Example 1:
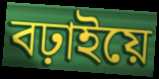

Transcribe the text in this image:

বঢ়াইয়ে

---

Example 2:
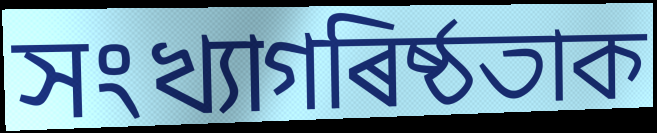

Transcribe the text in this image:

সংখ্যাগৰিষ্ঠতাক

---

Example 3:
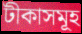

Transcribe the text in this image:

টীকাসমূহ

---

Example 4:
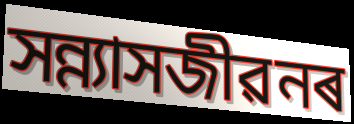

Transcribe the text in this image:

সন্ন্যাসজীৱনৰ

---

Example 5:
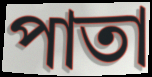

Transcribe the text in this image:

পাতা